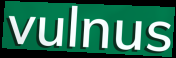
vulnus